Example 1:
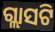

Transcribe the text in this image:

ଗ୍ଲାସଟି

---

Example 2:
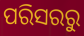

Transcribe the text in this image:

ପରିସରରୁ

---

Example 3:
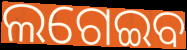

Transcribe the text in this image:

ଲଗେଇବ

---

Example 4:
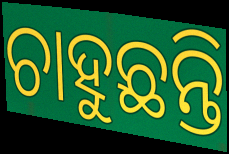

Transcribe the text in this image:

ଚାହୁଛନ୍ତି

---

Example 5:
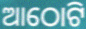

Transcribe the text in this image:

ଆଠୋଟି